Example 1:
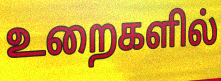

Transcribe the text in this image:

உறைகளில்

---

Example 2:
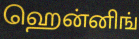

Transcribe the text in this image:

ஹென்னிங்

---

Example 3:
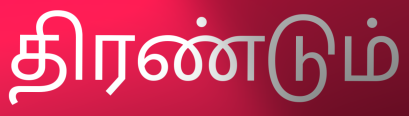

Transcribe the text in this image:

திரண்டும்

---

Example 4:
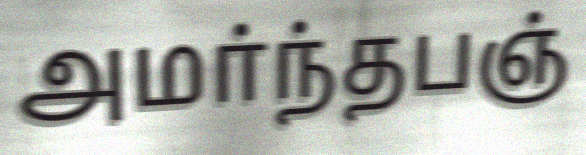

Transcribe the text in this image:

அமர்ந்தபஞ்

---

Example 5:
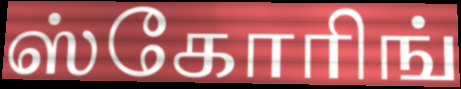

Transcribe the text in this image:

ஸ்கோரிங்